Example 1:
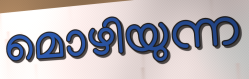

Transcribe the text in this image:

മൊഴിയുന്ന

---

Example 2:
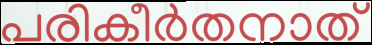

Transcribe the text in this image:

പരികീർതനാത്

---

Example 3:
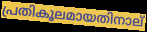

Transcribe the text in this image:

പ്രതികൂലമായതിനാല്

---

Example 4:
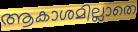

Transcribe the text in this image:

ആകാശമില്ലാതെ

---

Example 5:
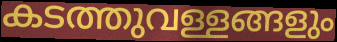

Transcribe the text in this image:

കടത്തുവള്ളങ്ങളും